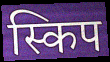
स्किप